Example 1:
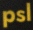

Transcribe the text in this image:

psl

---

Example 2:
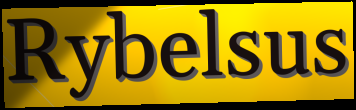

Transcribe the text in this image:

Rybelsus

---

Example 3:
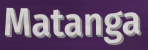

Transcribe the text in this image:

Matanga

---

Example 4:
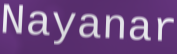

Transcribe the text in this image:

Nayanar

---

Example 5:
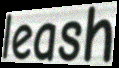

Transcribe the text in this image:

leash